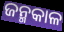
ଜନ୍ମକାଳ